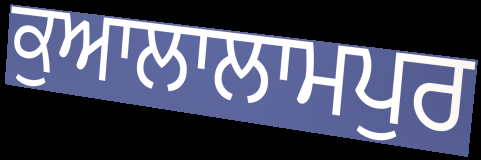
ਕੁਆਲਾਲਾਮਪੁਰ